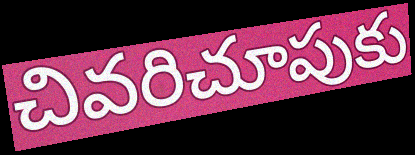
చివరిచూపుకు